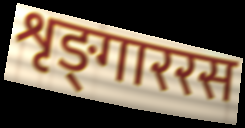
शृङ्गाररस